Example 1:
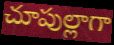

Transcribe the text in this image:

చూపుల్లాగా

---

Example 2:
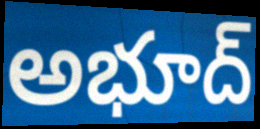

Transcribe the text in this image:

అభూద్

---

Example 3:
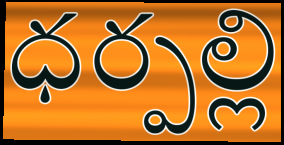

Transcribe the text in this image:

ధర్పల్లి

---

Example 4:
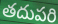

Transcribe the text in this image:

తదుపరి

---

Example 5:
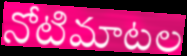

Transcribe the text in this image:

నోటిమాటల